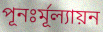
পূনঃর্মূল্যায়ন